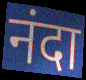
नंदा